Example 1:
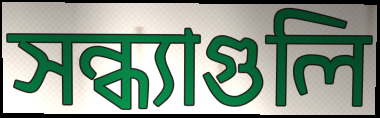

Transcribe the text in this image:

সন্ধ্যাগুলি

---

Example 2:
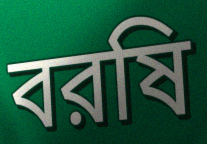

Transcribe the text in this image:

বরষি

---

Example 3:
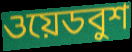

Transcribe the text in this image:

ওয়েডবুশ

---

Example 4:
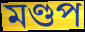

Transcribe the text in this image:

মণ্ডপ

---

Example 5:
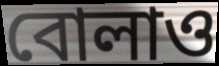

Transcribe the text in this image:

বোলাও